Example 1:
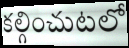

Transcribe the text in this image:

కల్గించుటలో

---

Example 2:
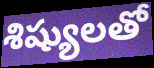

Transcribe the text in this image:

శిష్యులతో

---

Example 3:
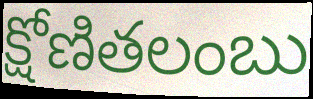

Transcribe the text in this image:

క్షోణితలంబు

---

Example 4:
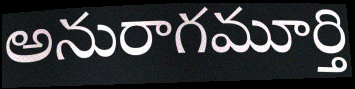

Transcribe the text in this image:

అనురాగమూర్తి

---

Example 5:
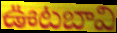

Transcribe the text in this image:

ఊటబావి